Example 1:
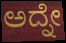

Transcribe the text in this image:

ಅದ್ನೇ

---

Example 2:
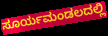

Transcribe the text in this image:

ಸೂರ್ಯಮಂಡಲದಲ್ಲಿ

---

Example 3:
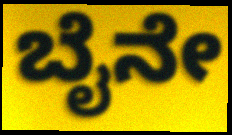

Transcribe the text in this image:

ಬೈನೇ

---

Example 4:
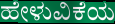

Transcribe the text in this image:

ಹೇಳುವಿಕೆಯ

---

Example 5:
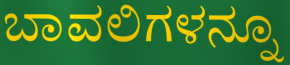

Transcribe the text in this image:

ಬಾವಲಿಗಳನ್ನೂ